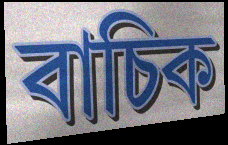
বাচিক